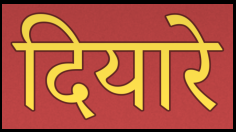
दियारे